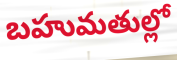
బహుమతుల్లో